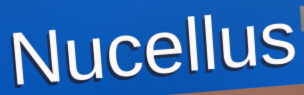
Nucellus